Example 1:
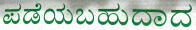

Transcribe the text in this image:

ಪಡೆಯಬಹುದಾದ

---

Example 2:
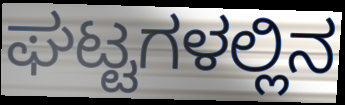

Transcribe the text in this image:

ಘಟ್ಟಗಳಲ್ಲಿನ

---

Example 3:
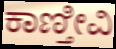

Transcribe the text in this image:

ಕಾಣ್ತೀವಿ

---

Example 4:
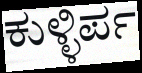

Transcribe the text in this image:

ಕುಳ್ಳಿರ್ಪ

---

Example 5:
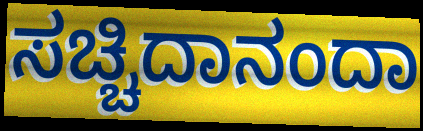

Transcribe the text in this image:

ಸಚ್ಚಿದಾನಂದಾ